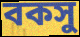
বকসু